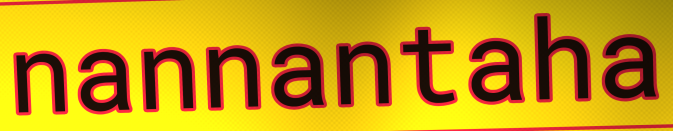
nannantaha